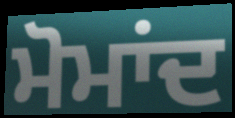
ਮੋਮਾਂਦ